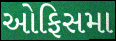
ઓફિસમા